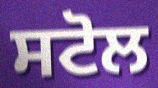
ਸਟੋਲ